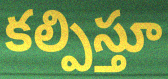
కల్పిస్తూ